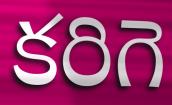
కరిగె